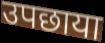
उपछाया